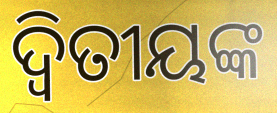
ଦ୍ଵିତୀୟଙ୍କ